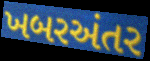
ખબરઅંતર